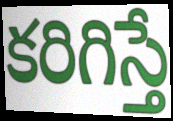
కరిగిస్తే